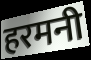
हरमनी